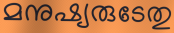
മനുഷ്യരുടേതു